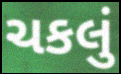
ચકલું